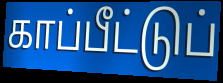
காப்பீட்டுப்